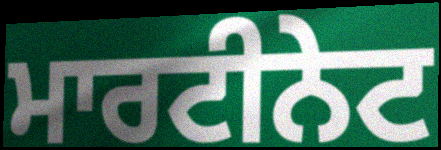
ਮਾਰਟੀਨੇਟ